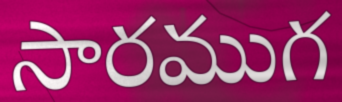
సారముగ